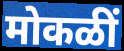
मोकळीं